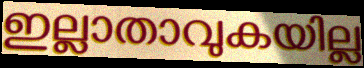
ഇല്ലാതാവുകയില്ല